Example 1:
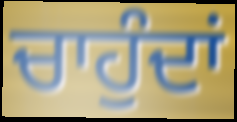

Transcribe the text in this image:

ਚਾਹੁੰਦਾਂ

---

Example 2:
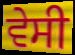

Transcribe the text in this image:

ਵੇਸੀ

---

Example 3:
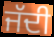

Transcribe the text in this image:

ਜੱਦੀ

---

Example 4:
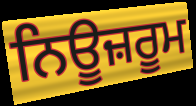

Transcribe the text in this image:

ਨਿਊਜ਼ਰੂਮ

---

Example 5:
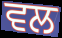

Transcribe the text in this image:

ਵਲ